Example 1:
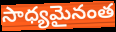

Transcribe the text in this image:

సాధ్యమైనంత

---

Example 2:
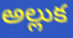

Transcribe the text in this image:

అల్లుక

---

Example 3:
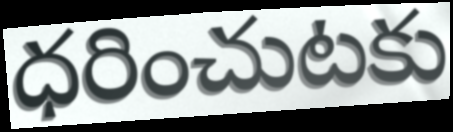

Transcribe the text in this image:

ధరించుటకు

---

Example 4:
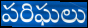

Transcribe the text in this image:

పరిఘలు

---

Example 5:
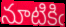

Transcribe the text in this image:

నూటికిఁ